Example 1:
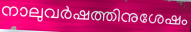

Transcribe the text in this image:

നാലുവർഷത്തിനുശേഷം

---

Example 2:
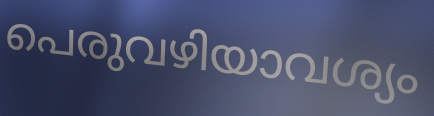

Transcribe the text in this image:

പെരുവഴിയാവശ്യം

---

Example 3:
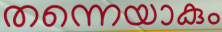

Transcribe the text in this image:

തന്നെയാകും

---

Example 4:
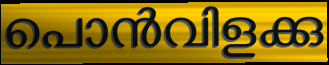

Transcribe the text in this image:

പൊൻവിളക്കു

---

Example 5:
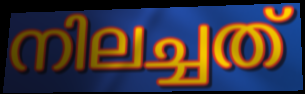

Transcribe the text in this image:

നിലച്ചത്